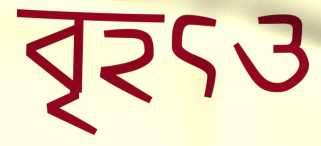
বৃহৎও